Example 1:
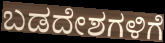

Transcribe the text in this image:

ಬಡದೇಶಗಳಿಗೆ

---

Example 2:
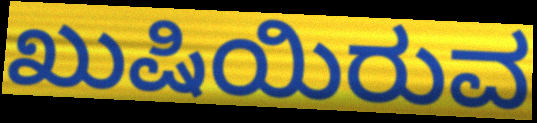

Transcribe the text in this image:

ಖುಷಿಯಿರುವ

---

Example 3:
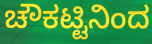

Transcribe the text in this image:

ಚೌಕಟ್ಟಿನಿಂದ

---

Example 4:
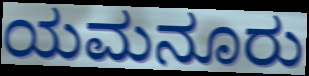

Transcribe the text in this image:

ಯಮನೂರು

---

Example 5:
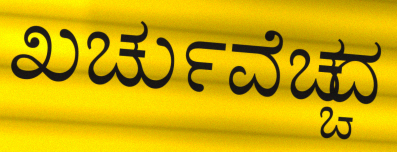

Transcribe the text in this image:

ಖರ್ಚುವೆಚ್ಚದ